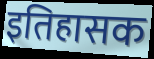
इतिहासक